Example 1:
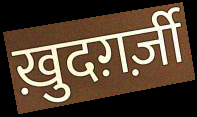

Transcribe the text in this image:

ख़ुदग़र्ज़ी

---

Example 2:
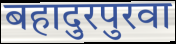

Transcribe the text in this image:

बहादुरपुरवा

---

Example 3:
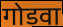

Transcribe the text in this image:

गोडवा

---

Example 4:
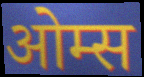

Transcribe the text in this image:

ओम्स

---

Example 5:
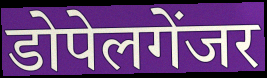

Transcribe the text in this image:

डोपेलगेंजर